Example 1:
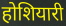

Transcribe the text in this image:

होशियारी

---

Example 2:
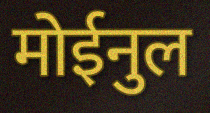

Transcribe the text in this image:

मोईनुल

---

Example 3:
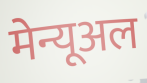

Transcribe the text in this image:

मेन्यूअल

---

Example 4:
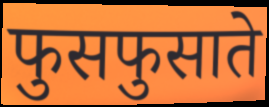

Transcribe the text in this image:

फुसफुसाते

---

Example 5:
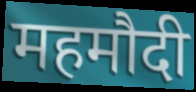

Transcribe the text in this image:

महमौदी